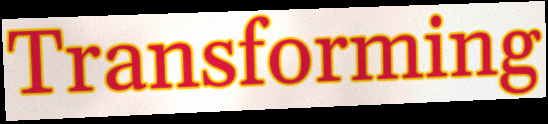
Transforming